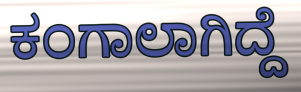
ಕಂಗಾಲಾಗಿದ್ದೆ